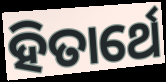
ହିତାର୍ଥେ